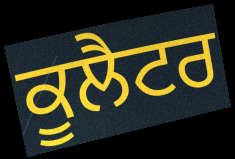
ਕੂਲੈਟਰ